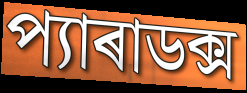
প্যাৰাডক্স